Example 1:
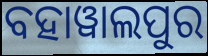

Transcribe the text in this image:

ବହାୱାଲପୁର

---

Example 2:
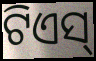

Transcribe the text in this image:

ଟିଏସ୍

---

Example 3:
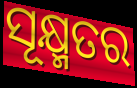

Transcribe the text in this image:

ସୂକ୍ଷ୍ମତର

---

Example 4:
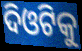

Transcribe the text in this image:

ଦିଓଟିକୁ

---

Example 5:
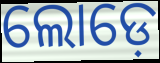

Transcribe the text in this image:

ଲୋଡ଼େ